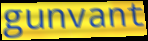
gunvant